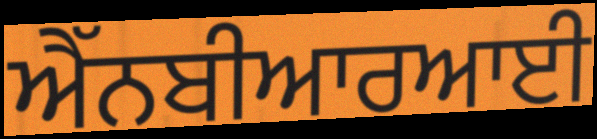
ਐੱਨਬੀਆਰਆਈ